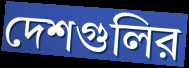
দেশগুলির